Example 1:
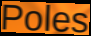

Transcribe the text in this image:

Poles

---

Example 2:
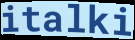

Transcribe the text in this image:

italki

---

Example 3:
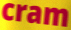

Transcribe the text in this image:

cram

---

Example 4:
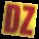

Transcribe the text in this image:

DZ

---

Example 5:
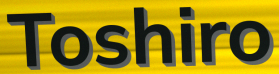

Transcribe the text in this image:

Toshiro